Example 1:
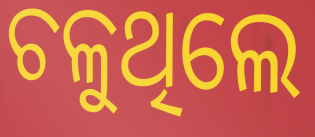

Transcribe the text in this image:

ଚଳୁଥିଲେ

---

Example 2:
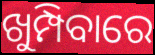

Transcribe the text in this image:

ଖୁମ୍ପିବାରେ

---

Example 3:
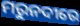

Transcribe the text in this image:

ମରୁନଦୀରେ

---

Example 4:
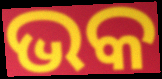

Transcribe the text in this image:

ଭକ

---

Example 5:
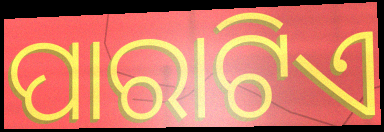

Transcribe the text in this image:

ପାରାଟିଏ